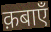
क़बाएँ